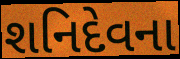
શનિદેવના